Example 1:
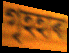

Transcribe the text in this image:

গৃহহাৰা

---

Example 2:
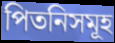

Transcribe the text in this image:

পিতনিসমূহ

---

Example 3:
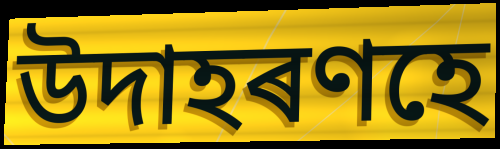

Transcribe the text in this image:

উদাহৰণহে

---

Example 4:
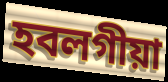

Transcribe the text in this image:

হবলগীয়া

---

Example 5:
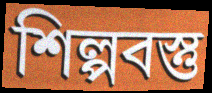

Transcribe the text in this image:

শিল্পবস্তু